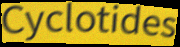
Cyclotides